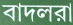
বাদলরা